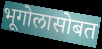
भूगोलासोबत